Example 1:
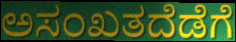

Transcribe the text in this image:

ಅಸಂಖತದೆಡೆಗೆ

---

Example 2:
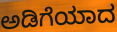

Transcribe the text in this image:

ಅಡಿಗೆಯಾದ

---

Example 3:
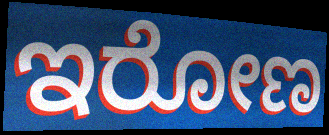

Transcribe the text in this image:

ಇರೋಣ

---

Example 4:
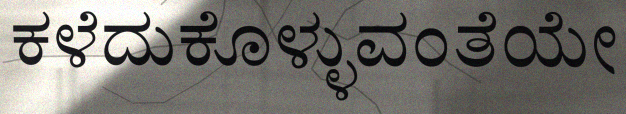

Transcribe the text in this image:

ಕಳೆದುಕೊಳ್ಳುವಂತೆಯೇ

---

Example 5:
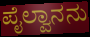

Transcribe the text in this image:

ಪೈಲ್ವಾನನು